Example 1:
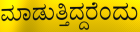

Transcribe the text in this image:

ಮಾಡುತ್ತಿದ್ದರೆಂದು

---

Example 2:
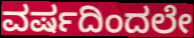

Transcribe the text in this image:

ವರ್ಷದಿಂದಲೇ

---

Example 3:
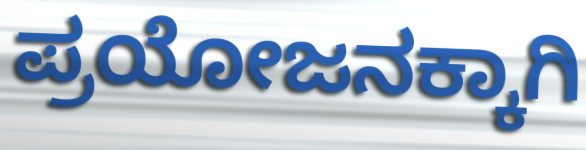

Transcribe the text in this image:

ಪ್ರಯೋಜನಕ್ಕಾಗಿ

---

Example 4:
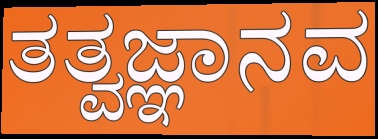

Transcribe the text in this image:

ತತ್ವಜ್ಞಾನವ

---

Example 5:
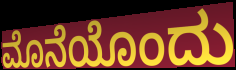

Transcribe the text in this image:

ಮೊನೆಯೊಂದು